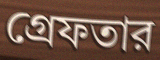
গ্রেফতার